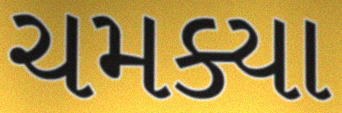
ચમક્યા